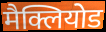
मैक्लियोड